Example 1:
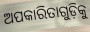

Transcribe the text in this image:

ଅପକାରିତାଗୁଡ଼ିକୁ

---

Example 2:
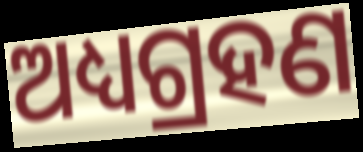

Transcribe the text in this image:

ଅଧ୍ୟଗ୍ରହଣ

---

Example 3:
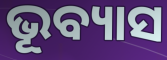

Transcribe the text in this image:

ଭୂବ୍ୟାସ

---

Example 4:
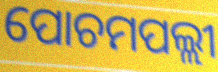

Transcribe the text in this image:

ପୋଚମପଲ୍ଲୀ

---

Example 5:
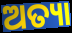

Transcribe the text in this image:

ଅତ୍ୟା